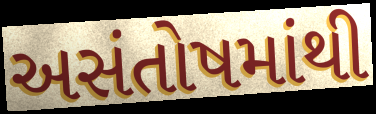
અસંતોષમાંથી